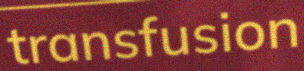
transfusion